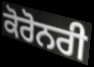
ਕੋਰੋਨਰੀ